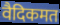
वैदिकमत